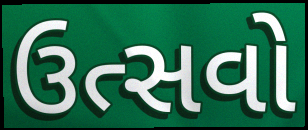
ઉત્સવો